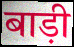
बाड़ी